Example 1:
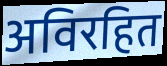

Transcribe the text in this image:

अविरहित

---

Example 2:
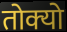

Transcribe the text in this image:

तोक्‍यो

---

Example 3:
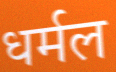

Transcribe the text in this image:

धर्मल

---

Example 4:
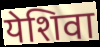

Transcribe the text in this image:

येशिवा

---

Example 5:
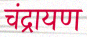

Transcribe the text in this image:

चंद्रायण